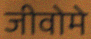
जीवोमे